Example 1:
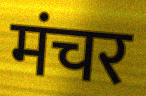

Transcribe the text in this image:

मंचर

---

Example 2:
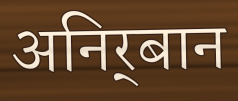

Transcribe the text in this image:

अनिर्बान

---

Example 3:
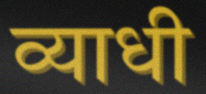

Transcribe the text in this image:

व्याधी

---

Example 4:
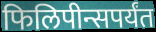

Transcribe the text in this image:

फिलिपीन्सपर्यंत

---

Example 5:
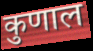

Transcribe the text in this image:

कुणाल